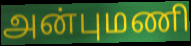
அன்புமணி